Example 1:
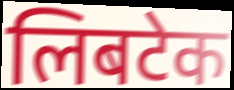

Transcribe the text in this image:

लिबटेक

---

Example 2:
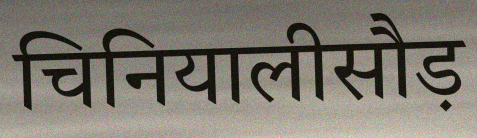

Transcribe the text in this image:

चिनियालीसौड़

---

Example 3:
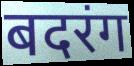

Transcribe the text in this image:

बदरंग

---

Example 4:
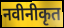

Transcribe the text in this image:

नवीनीकृत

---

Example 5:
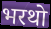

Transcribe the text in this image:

भरथो